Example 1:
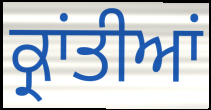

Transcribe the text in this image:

ਕ੍ਰਾਂਤੀਆਂ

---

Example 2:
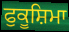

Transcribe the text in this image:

ਫੁਕੂਸ਼ਿਮਾ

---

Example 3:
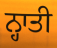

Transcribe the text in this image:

ਨ੍ਹਾਤੀ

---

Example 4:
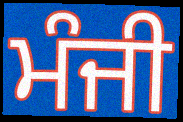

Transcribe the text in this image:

ਮੰਜੀ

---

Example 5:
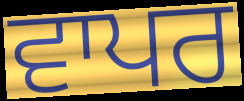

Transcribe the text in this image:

ਵਾਪਰ